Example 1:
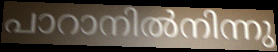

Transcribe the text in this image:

പാറാനിൽനിന്നു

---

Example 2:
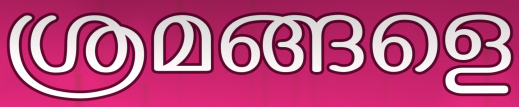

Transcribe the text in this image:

ശ്രമങ്ങളെ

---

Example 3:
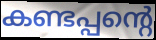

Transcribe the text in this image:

കണ്ടപ്പന്റെ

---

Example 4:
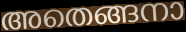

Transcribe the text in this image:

അതെങ്ങനാ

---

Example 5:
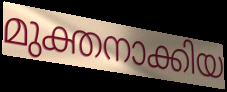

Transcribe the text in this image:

മുക്തനാക്കിയ